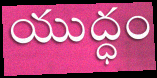
యుద్ధం